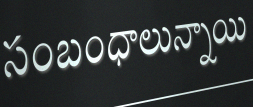
సంబంధాలున్నాయి